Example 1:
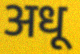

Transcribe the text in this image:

अधू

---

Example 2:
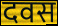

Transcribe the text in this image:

दवस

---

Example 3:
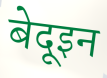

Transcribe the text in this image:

बेदूइन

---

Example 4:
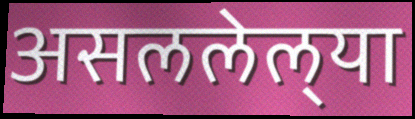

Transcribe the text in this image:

असललेल्या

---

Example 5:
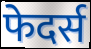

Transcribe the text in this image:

फेदर्स